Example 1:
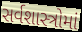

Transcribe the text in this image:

સર્વશાસ્ત્રોમાં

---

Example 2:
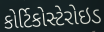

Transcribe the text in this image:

કોર્ટિકોસ્ટેરોઇડ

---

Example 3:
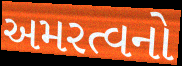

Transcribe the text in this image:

અમરત્વનો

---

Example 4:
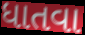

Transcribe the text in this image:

ધાતવા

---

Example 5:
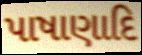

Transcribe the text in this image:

પાષાણાદિ